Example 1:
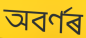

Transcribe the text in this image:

অবৰ্ণৰ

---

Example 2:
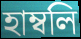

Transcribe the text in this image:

হাম্বলি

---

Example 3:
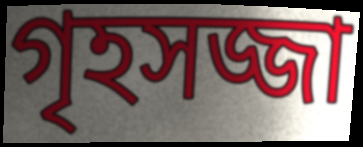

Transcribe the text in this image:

গৃহসজ্জা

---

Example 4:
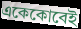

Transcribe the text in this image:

একেকোবেই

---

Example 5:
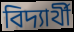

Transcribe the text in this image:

বিদ্যাৰ্থী